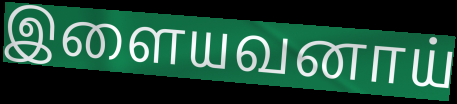
இளையவனாய்